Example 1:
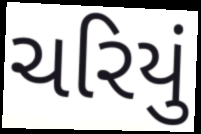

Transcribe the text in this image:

ચરિયું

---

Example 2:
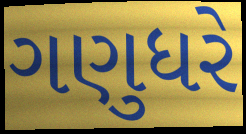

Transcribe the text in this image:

ગણુધરે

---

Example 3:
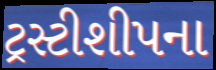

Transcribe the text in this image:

ટ્રસ્ટીશીપના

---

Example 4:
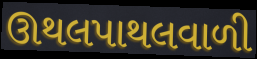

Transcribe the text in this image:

ઊથલપાથલવાળી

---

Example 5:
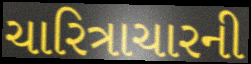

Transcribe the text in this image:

ચારિત્રાચારની